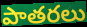
పాతరలు